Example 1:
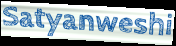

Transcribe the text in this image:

Satyanweshi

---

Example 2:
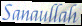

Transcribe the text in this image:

Sanaullah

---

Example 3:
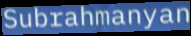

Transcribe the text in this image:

Subrahmanyan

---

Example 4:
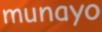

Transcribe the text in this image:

munayo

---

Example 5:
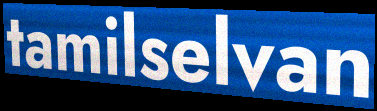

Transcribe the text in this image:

tamilselvan